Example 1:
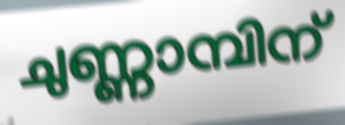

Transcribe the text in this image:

ചുണ്ണാമ്പിന്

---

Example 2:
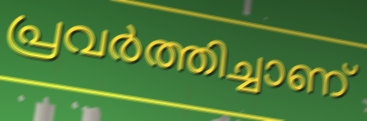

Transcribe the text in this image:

പ്രവർത്തിച്ചാണ്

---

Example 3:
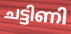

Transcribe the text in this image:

ചട്ടിണി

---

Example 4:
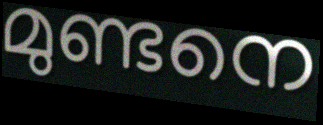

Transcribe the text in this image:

മുണ്ടനെ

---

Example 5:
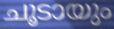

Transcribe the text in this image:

ചൂടായും